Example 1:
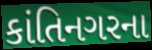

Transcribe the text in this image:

કાંતિનગરના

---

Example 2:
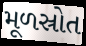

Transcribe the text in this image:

મૂળસ્રોત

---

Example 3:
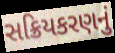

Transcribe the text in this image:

સક્રિયકરણનું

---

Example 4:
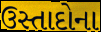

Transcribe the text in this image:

ઉસ્તાદોના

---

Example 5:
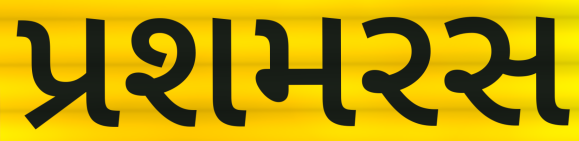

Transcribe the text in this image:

પ્રશમરસ